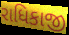
રાધિકાજી